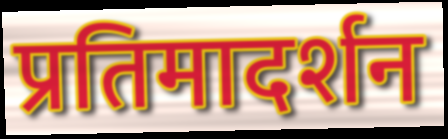
प्रतिमादर्शन